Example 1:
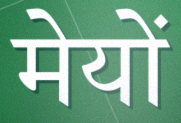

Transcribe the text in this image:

मेयों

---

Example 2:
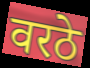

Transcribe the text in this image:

वरठे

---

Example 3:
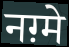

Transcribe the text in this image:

नग़्मे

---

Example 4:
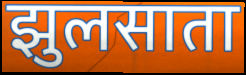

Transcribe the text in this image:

झुलसाता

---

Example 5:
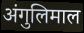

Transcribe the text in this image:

अंगुलिमाल